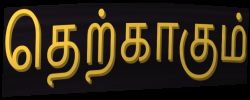
தெற்காகும்